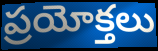
ప్రయోక్తలు